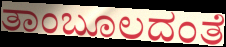
ತಾಂಬೂಲದಂತೆ